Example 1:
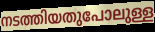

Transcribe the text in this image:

നടത്തിയതുപോലുള്ള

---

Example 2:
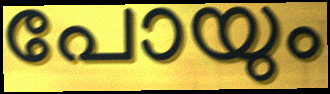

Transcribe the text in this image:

പോയും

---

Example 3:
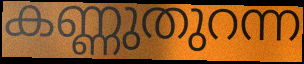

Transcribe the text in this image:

കണ്ണുതുറന്ന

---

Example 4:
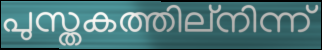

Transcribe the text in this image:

പുസ്തകത്തില്നിന്ന്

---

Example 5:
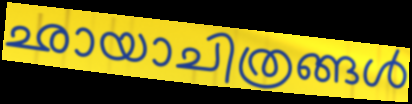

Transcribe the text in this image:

ഛായാചിത്രങ്ങൾ